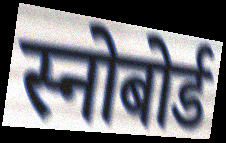
स्नोबोर्ड